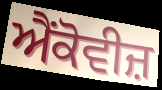
ਐਂਕੋਵੀਜ਼